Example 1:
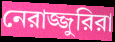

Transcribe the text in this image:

নেরাজ্জুরিরা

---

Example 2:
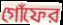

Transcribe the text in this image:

গোঁফের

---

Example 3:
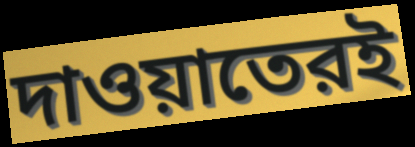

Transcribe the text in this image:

দাওয়াতেরই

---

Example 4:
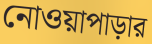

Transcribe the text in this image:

নোওয়াপাড়ার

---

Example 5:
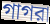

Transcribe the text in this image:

গাগরা